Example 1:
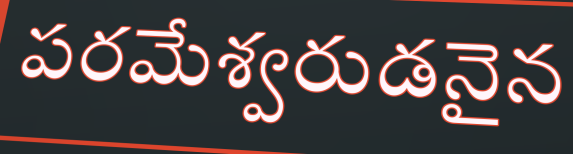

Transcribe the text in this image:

పరమేశ్వరుడనైన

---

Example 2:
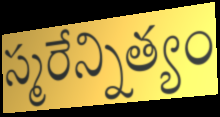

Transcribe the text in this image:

స్మరేన్నిత్యం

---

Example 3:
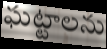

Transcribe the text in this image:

ఘట్టాలను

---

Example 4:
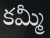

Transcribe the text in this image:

కమ్మీ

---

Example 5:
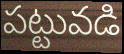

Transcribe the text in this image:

పట్టువడి